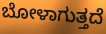
ಬೋಳಾಗುತ್ತದೆ